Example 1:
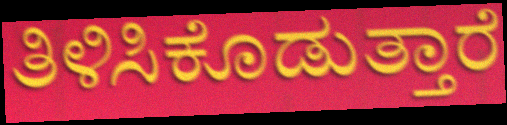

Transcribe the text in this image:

ತಿಳಿಸಿಕೊಡುತ್ತಾರೆ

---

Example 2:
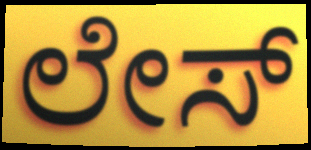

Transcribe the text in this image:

ಲೇಸ್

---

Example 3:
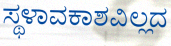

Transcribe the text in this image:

ಸ್ಥಳಾವಕಾಶವಿಲ್ಲದ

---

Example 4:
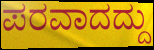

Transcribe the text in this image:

ಪರವಾದದ್ದು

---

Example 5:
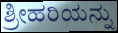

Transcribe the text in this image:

ಶ್ರೀಹರಿಯನ್ನು